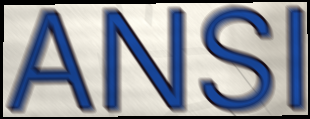
ANSI